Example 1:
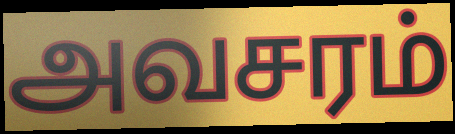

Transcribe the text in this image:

அவசரம்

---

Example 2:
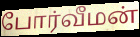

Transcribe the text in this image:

போர்வீமன்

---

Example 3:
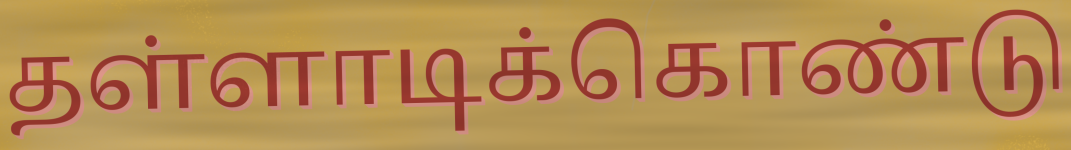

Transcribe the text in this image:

தள்ளாடிக்கொண்டு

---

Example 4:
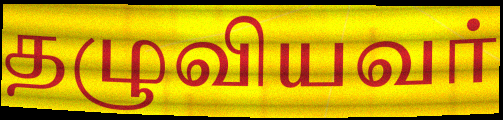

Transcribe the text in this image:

தழுவியவர்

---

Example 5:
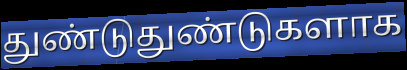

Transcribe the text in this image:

துண்டுதுண்டுகளாக